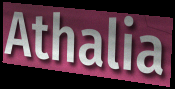
Athalia